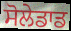
ਸੋਲੇਡਾਡ